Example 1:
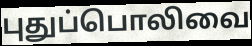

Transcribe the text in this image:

புதுப்பொலிவை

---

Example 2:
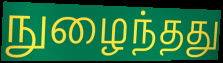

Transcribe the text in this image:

நுழைந்தது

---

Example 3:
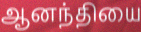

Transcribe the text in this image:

ஆனந்தியை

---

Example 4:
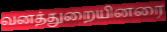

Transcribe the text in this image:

வனத்துறையினரை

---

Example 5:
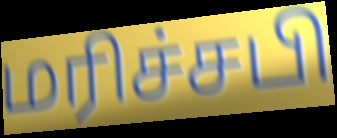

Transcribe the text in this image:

மரிச்சபி